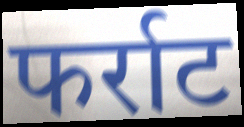
फर्राट